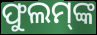
ଫୁଲମ୍‌ଙ୍କ